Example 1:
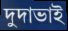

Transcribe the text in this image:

দুদাভাই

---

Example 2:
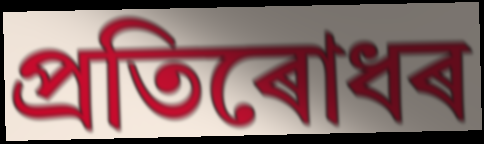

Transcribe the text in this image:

প্ৰতিৰোধৰ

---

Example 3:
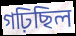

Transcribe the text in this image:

গঢ়িছিল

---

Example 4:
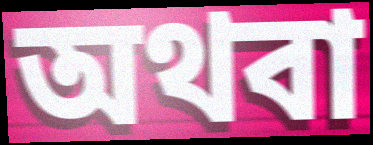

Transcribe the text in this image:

অথবা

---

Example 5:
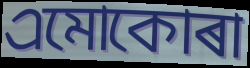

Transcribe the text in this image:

এমোকোৰা